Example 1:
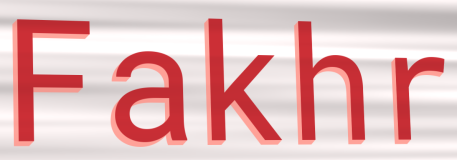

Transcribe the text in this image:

Fakhr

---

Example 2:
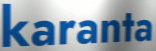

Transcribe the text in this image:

karanta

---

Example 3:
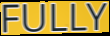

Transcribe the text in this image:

FULLY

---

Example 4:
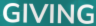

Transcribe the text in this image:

GIVING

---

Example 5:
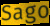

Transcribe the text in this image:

Sago